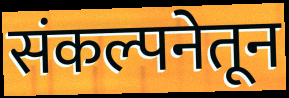
संकल्पनेतून